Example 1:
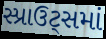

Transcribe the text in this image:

સ્પ્રાઉટ્સમાં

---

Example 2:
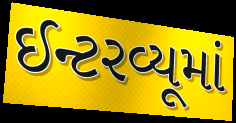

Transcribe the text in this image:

ઈન્ટરવ્યૂમાં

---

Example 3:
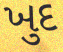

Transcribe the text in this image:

ખુદ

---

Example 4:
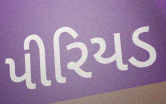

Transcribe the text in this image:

પીરિયડ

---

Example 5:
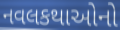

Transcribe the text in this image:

નવલકથાઓનો